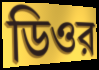
ডিওর